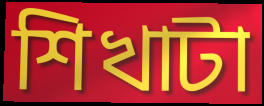
শিখাটা